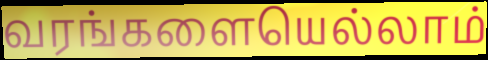
வரங்களையெல்லாம்